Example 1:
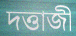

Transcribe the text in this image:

দত্তাজী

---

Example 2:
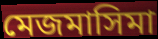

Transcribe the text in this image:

মেজমাসিমা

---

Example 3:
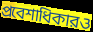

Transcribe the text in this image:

প্রবেশাধিকারও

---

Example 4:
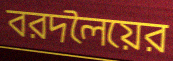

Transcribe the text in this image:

বরদলৈয়ের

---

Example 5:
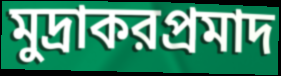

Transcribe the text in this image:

মুদ্রাকরপ্রমাদ